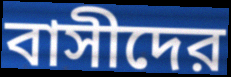
বাসীদের